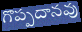
గొప్పదానవు